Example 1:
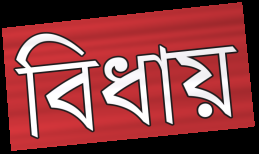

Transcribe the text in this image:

বিধায়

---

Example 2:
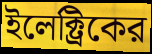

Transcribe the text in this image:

ইলেক্ট্রিকের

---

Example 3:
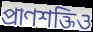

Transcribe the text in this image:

প্রাণশক্তিও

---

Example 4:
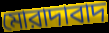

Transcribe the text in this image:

মোরাদাবাদ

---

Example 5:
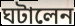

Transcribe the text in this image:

ঘটালেন